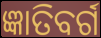
ଜ୍ଞାତିବର୍ଗ